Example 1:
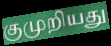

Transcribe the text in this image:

குமுறியது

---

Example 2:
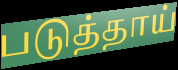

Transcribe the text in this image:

படுத்தாய்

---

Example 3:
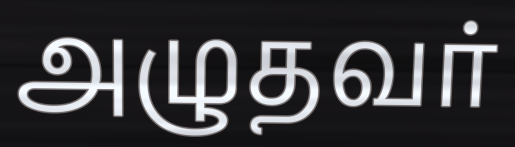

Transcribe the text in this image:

அழுதவர்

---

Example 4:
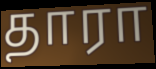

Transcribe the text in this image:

தாரா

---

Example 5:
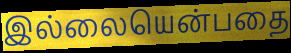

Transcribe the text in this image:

இல்லையென்பதை